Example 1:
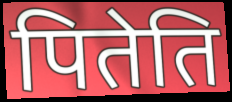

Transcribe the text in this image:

पितेति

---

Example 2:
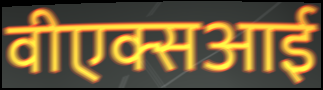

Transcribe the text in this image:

वीएक्सआई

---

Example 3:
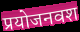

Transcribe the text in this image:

प्रयोजनवश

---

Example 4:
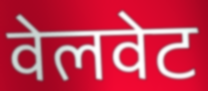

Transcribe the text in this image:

वेलवेट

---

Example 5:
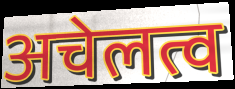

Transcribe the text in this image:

अचेलत्व